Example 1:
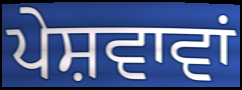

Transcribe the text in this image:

ਪੇਸ਼ਵਾਵਾਂ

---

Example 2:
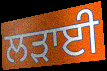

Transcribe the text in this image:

ਲੜਾਈ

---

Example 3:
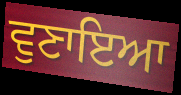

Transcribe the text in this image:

ਵੁਣਾਇਆ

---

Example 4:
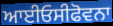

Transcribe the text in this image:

ਆਈਓਸੀਫੋਵਨਾ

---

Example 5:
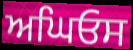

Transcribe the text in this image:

ਅਘਿਓਸ